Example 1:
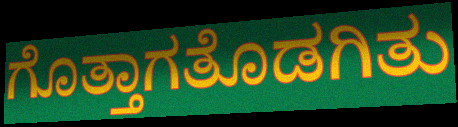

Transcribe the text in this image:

ಗೊತ್ತಾಗತೊಡಗಿತು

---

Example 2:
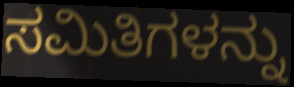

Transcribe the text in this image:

ಸಮಿತಿಗಳನ್ನು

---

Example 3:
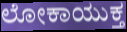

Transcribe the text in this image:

ಲೋಕಾಯುಕ್ತ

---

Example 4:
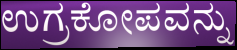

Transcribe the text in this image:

ಉಗ್ರಕೋಪವನ್ನು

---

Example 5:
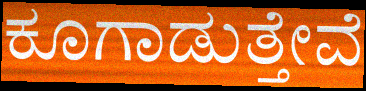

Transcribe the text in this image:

ಕೂಗಾಡುತ್ತೇವೆ